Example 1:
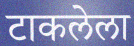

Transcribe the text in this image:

टाकलेला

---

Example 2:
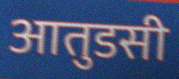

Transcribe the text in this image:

आतुडसी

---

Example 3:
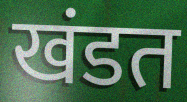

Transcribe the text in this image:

खंडत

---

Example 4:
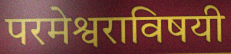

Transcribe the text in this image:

परमेश्वराविषयी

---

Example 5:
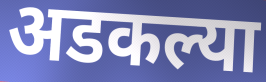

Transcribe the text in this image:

अडकल्या